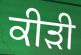
ਕੀੜੀ